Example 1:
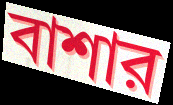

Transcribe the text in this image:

বাশার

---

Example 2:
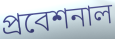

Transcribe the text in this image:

প্রবেশনাল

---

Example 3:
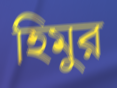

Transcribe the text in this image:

হিমুর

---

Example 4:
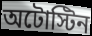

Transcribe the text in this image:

অটোস্টিন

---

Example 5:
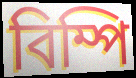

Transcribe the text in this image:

বিম্পি